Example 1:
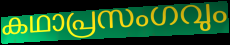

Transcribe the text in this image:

കഥാപ്രസംഗവും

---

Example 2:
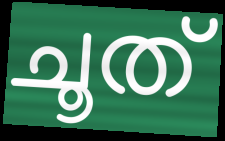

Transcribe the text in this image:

ചൂത്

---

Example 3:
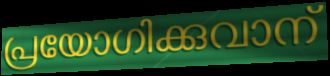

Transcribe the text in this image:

പ്രയോഗിക്കുവാന്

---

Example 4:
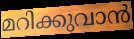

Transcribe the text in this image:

മറിക്കുവാൻ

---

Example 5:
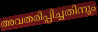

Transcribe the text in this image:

അവതരിപ്പിച്ചതിനും